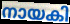
നായകി